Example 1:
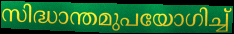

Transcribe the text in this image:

സിദ്ധാന്തമുപയോഗിച്ച്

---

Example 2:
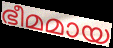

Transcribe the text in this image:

ഭീമമായ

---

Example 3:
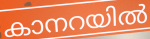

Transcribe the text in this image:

കാനറയിൽ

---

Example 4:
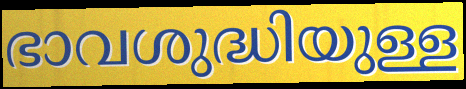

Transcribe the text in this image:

ഭാവശുദ്ധിയുള്ള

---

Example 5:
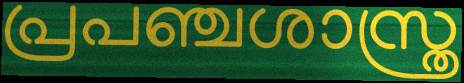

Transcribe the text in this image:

പ്രപഞ്ചശാസ്ത്ര